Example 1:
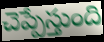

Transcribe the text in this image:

చెప్పేస్తుంది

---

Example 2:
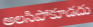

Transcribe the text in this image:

అలసిపోకూడదు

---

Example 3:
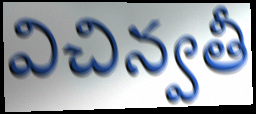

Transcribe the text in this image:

విచిన్వతీ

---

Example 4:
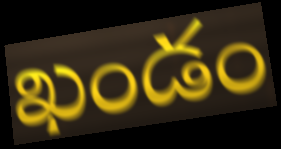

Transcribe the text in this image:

ఖండం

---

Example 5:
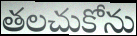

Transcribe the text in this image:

తలచుకోను